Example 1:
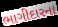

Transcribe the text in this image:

ભાગીદારના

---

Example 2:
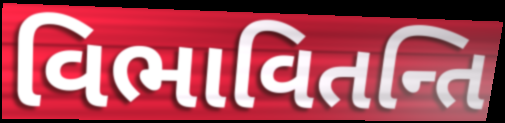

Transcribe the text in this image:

વિભાવિતન્તિ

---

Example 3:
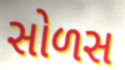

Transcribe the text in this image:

સોળસ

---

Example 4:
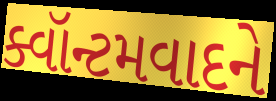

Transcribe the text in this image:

ક્વૉન્ટમવાદને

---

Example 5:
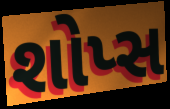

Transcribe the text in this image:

શોપ્સ